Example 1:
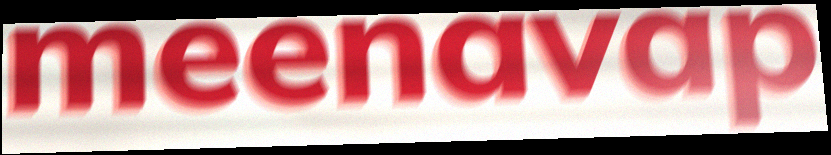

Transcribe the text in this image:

meenavap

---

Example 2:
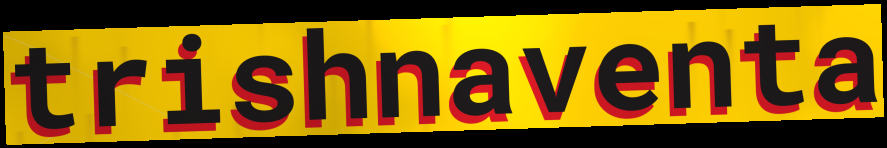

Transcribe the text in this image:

trishnaventa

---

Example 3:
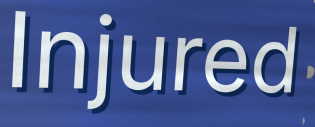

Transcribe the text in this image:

Injured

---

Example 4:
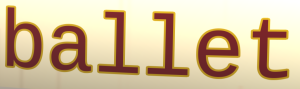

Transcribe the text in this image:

ballet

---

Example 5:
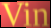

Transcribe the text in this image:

Vin